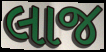
લાજ